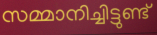
സമ്മാനിച്ചിട്ടുണ്ട്